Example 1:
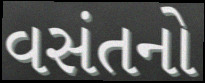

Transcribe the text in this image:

વસંતનો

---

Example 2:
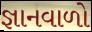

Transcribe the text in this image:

જ્ઞાનવાળો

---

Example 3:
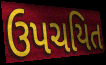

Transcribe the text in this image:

ઉપચયિત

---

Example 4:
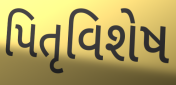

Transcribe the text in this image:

પિતૃવિશેષ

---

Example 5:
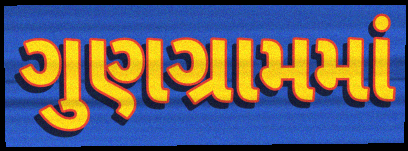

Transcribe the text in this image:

ગુણગ્રામમાં